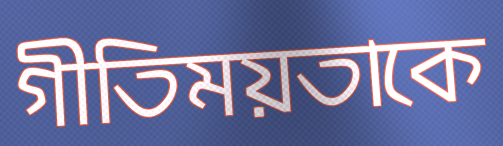
গীতিময়তাকে